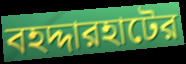
বহদ্দারহাটের